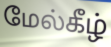
மேல்கீழ்